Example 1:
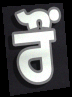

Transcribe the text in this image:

ਰੌਂ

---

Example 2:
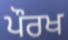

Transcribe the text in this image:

ਪੌਰਖ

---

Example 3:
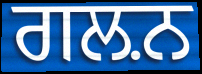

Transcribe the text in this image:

ਗਲ਼ਨ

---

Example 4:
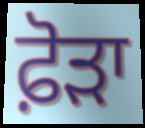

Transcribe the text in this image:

ਫ਼ੋੜਾ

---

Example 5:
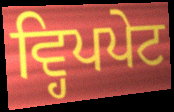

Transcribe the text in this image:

ਵ੍ਹਿਪਪੇਟ